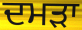
ਦਮੜਾ